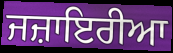
ਜਜ਼ਾਇਰੀਆ